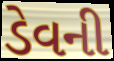
ડેવની